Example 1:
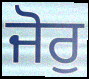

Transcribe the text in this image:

ਜੋਰੁ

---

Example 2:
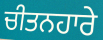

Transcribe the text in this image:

ਚੀਤਨਹਾਰੇ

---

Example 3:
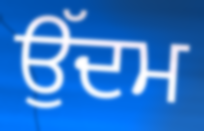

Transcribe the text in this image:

ਉੱਦਮ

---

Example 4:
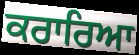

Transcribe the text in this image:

ਕਰਾਰਿਆ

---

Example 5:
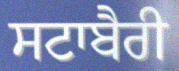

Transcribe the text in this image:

ਸਟਾਬੈਰੀ